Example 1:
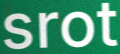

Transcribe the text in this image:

srot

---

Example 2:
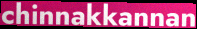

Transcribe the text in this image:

chinnakkannan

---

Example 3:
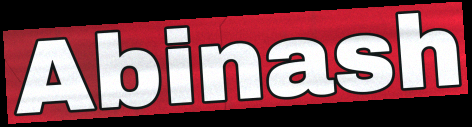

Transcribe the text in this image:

Abinash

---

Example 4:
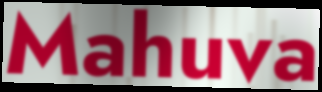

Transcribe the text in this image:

Mahuva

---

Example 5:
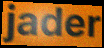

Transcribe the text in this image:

jader